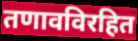
तणावविरहित